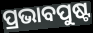
ପ୍ରଭାବପୁଷ୍ଟ